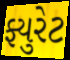
ફ્યુરેટ